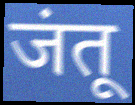
जंतू